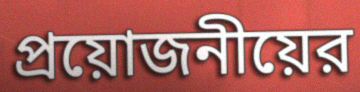
প্রয়োজনীয়ের